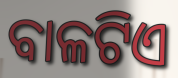
ବାଳଟିଏ